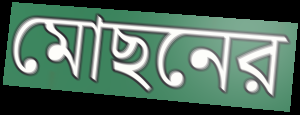
মোছনের